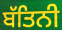
ਬੱਤਿਨੀ